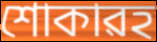
শোকাৱহ